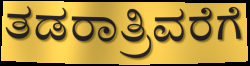
ತಡರಾತ್ರಿವರೆಗೆ